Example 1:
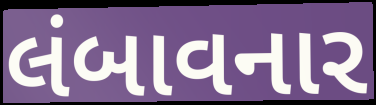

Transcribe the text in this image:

લંબાવનાર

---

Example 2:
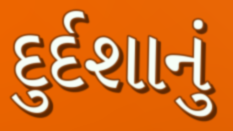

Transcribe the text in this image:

દુર્દશાનું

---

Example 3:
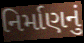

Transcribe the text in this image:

નિર્માણનું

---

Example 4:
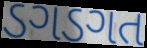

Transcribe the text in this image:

ડગડગત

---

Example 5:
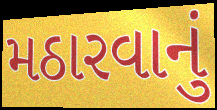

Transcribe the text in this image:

મઠારવાનું